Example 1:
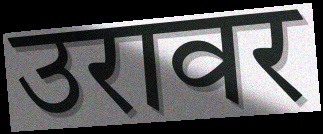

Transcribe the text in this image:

उरावर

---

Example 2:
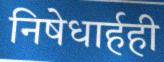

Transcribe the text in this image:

निषेधार्हही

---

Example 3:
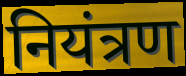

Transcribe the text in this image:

नियंत्रण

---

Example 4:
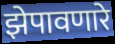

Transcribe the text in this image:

झेपावणारे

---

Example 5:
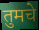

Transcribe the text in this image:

तुमचे